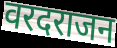
वरदराजन